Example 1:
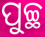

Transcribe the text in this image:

ପୁଚ୍ଛ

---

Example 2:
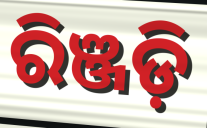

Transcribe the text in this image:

ରିଞ୍ଜଡ଼ି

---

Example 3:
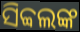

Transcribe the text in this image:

ସିବ୍ବଲଙ୍କ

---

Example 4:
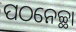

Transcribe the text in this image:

ପଠନେଚ୍ଛା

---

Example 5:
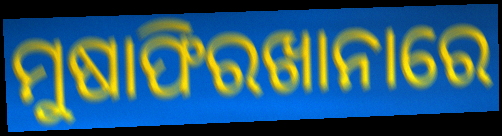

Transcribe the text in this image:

ମୁଷାଫିରଖାନାରେ